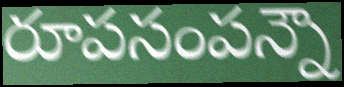
రూపసంపన్నౌ